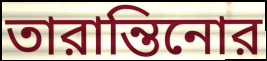
তারান্তিনোর